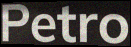
Petro